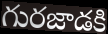
గురజాడకి